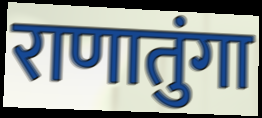
राणातुंगा